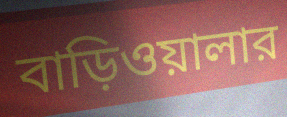
বাড়িওয়ালার